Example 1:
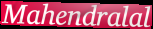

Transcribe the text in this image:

Mahendralal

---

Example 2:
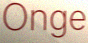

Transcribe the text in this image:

Onge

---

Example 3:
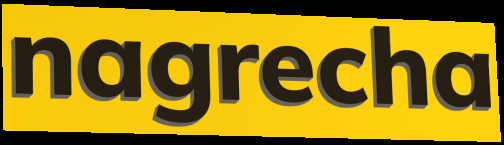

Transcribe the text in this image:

nagrecha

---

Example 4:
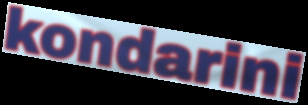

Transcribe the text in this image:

kondarini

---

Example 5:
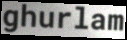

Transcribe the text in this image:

ghurlam